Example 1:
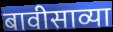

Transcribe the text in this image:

बावीसाव्या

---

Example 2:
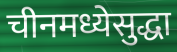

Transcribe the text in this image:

चीनमध्येसुद्धा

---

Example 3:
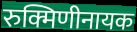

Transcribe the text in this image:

रुक्मिणीनायक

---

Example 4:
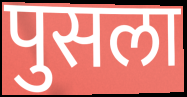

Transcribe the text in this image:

पुसला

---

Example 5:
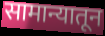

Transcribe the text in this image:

सामान्यातून